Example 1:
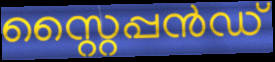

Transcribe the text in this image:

സ്റ്റൈപ്പൻഡ്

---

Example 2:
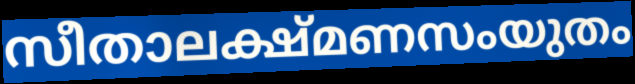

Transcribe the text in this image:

സീതാലക്ഷ്മണസംയുതം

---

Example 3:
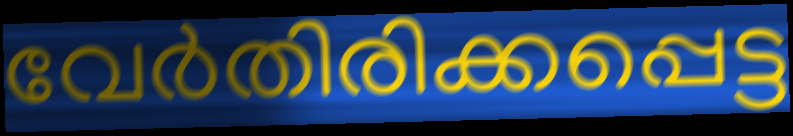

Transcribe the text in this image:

വേർതിരിക്കപ്പെട്ട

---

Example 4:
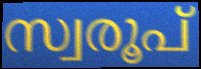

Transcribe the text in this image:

സ്വരൂപ്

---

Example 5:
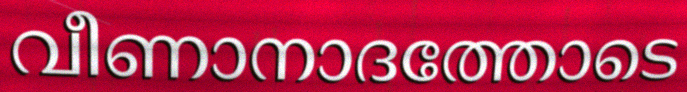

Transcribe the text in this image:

വീണാനാദത്തോടെ